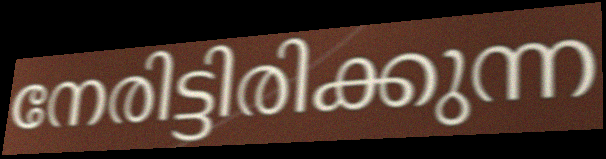
നേരിട്ടിരിക്കുന്ന